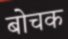
बोचक